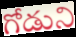
గోడుని